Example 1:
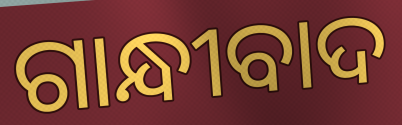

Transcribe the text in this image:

ଗାନ୍ଧୀବାଦ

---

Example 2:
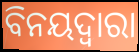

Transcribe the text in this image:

ବିନୟଦ୍ବାରା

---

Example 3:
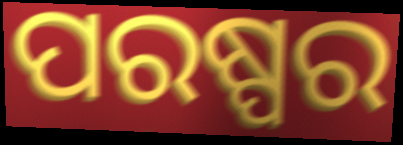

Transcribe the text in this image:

ପରଷ୍ପର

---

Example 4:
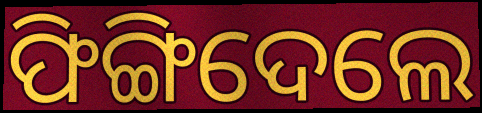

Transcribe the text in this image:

ଫିଙ୍ଗିଦେଲେ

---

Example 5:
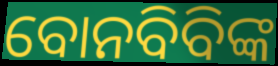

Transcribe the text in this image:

ବୋନବିବିଙ୍କ